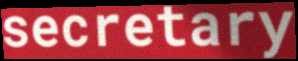
secretary